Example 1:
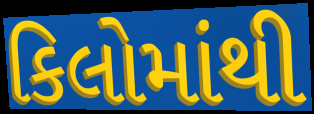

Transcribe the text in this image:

કિલોમાંથી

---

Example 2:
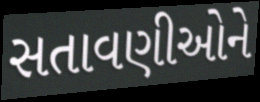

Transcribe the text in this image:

સતાવણીઓને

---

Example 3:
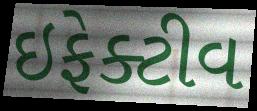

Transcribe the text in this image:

ઇફેક્ટીવ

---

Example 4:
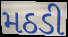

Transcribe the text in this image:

મઠડી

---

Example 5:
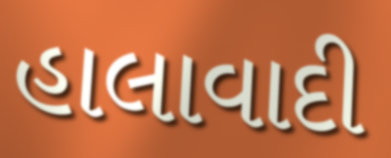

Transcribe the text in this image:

હાલાવાદી